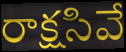
రాక్షసివే